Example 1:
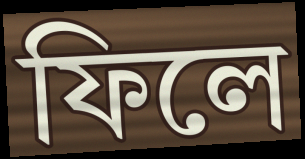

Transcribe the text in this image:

ফিলে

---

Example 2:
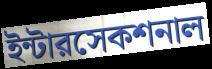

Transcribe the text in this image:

ইন্টারসেকশনাল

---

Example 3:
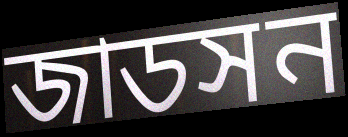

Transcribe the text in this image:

জাডসন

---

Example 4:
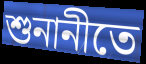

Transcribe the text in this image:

শুনানীতে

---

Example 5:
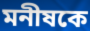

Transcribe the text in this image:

মনীষকে